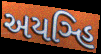
અયઞ્હિ